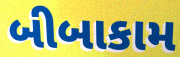
બીબાકામ